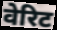
वेरिट